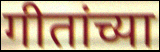
गीतांच्या